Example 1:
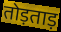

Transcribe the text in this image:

तोड़ताड़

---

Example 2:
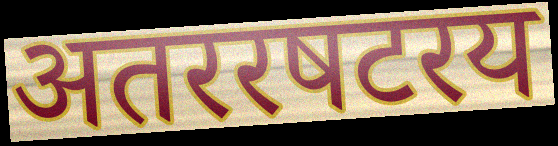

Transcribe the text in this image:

अतररषटरय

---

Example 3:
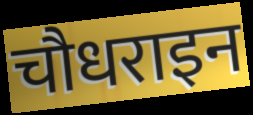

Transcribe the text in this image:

चौधराइन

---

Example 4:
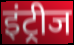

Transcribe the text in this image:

इंट्रीज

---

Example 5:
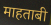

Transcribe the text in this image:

माहताबी